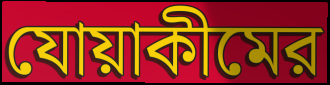
যোয়াকীমের